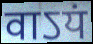
वाऽयं